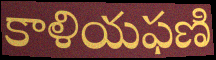
కాళియఫణి